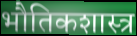
भौतिकशास्त्र